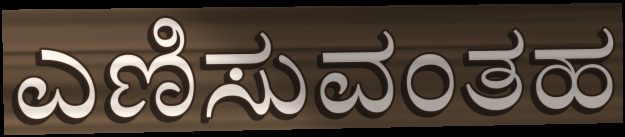
ಎಣಿಸುವಂತಹ